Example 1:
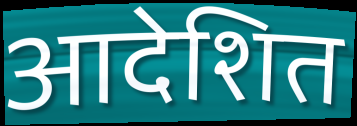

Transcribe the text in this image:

आदेशित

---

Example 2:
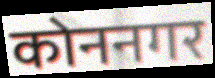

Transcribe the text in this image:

कोननगर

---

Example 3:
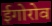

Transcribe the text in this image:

ईगोरोव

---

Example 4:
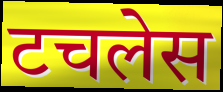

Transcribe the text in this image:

टचलेस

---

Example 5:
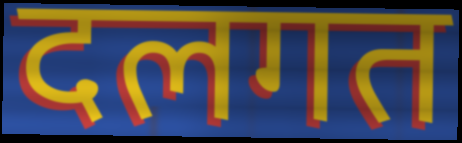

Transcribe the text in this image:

दलगत